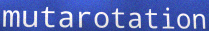
mutarotation